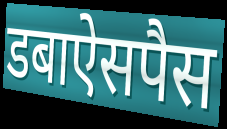
डबाऐसपैस